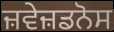
ਜ਼ਵੇਜ਼ਡਨੋਸ